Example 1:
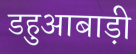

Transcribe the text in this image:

डहुआबाड़ी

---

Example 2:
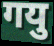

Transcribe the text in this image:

गयु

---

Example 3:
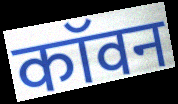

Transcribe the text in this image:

कॉवन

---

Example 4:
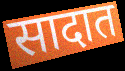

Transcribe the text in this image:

सादात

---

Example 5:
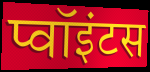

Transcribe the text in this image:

प्वॉइंटस